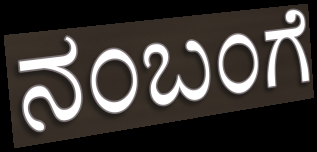
ನಂಬಂಗೆ